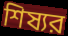
শিষ্যর